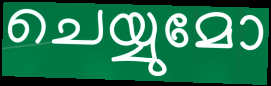
ചെയ്യുമോ